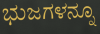
ಭುಜಗಳನ್ನೂ